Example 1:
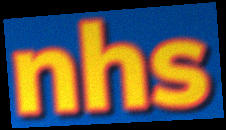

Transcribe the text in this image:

nhs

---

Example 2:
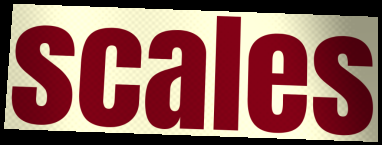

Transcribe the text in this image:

scales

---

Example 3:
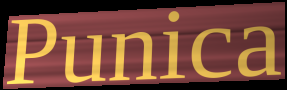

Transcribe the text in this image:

Punica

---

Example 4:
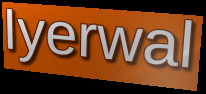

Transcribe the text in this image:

Iyerwal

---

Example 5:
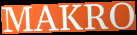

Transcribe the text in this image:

MAKRO